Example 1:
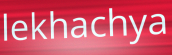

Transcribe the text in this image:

lekhachya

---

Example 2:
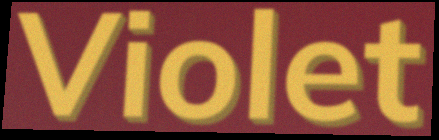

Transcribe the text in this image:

Violet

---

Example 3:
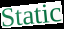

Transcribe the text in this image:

Static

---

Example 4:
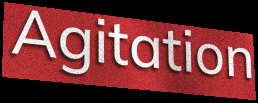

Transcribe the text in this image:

Agitation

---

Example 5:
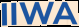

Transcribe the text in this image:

IIWA